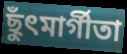
ছুঁৎমার্গীতা